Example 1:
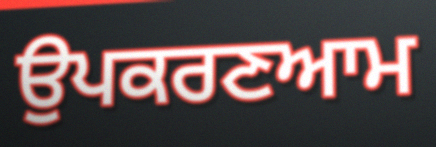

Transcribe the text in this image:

ਉਪਕਰਣਆਮ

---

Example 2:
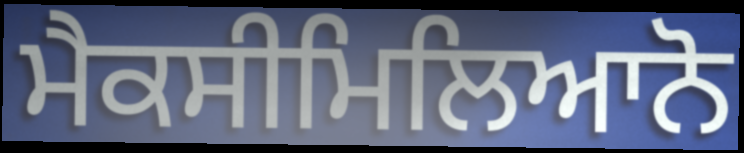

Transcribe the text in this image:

ਮੈਕਸੀਮਿਲਿਆਨੋ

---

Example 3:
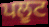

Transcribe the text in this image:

ਪਲੂਟ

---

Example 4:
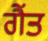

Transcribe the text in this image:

ਗੈਂਤ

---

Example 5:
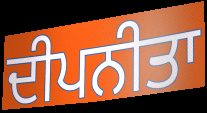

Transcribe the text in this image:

ਦੀਪਨੀਤਾ